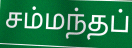
சம்மந்தப்